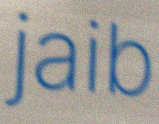
jaib